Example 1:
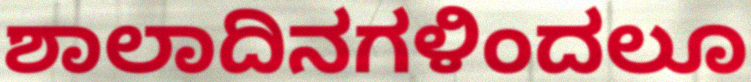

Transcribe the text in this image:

ಶಾಲಾದಿನಗಳಿಂದಲೂ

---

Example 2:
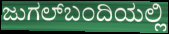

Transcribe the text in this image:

ಜುಗಲ್‌ಬಂದಿಯಲ್ಲಿ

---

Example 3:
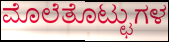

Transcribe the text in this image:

ಮೊಲೆತೊಟ್ಟುಗಳ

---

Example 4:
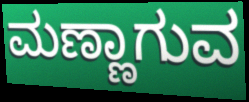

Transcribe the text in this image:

ಮಣ್ಣಾಗುವ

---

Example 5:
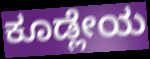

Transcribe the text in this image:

ಕೂಡ್ಲೇಯ